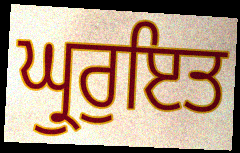
ਘ੍ਰੁਰੁਇਤ